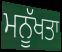
ਮਨੂੱਖਤਾ